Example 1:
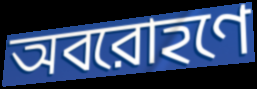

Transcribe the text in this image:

অবরোহণে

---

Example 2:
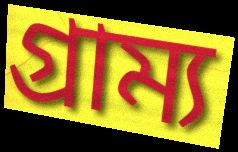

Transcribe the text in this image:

গ্রাম্য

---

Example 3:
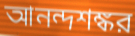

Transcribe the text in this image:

আনন্দশঙ্কর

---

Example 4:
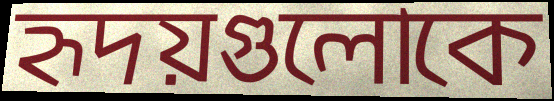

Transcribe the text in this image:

হৃদয়গুলোকে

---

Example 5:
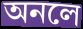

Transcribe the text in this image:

অনলে